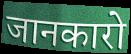
जानकारो